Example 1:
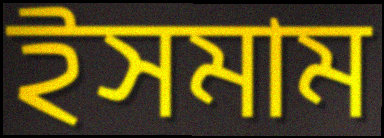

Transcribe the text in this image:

ইসমাম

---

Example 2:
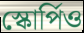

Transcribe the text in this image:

স্কোর্পিও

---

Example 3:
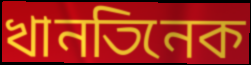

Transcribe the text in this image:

খানতিনেক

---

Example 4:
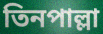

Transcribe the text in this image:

তিনপাল্লা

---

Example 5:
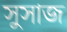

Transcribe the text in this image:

সুসাজ